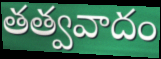
తత్వవాదం